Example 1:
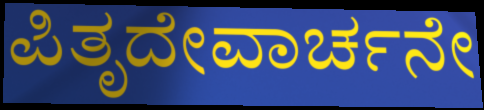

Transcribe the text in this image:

ಪಿತೃದೇವಾರ್ಚನೇ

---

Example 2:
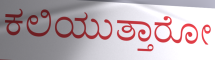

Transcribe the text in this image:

ಕಲಿಯುತ್ತಾರೋ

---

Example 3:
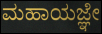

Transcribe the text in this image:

ಮಹಾಯಜ್ಞೇ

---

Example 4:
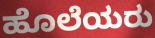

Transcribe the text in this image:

ಹೊಲೆಯರು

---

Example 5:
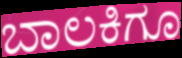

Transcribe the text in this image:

ಬಾಲಕಿಗೂ